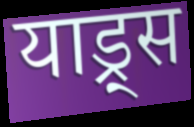
याड्र्स